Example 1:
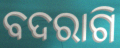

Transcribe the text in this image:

ବଦରାଗି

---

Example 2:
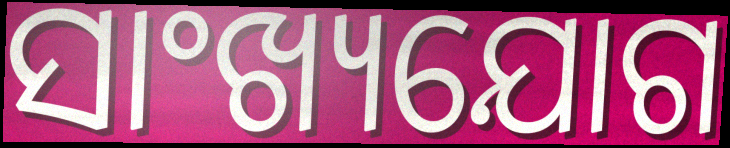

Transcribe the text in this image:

ସାଂଖ୍ୟଯୋଗ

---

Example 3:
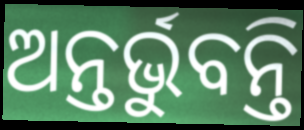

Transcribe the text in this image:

ଅନ୍ତର୍ଭୁବନ୍ତି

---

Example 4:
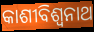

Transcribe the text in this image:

କାଶୀବିଶ୍ଵନାଥ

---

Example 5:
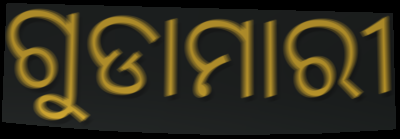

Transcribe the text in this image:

ଗୁଡାମାରୀ